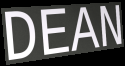
DEAN